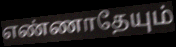
எண்ணாதேயும்